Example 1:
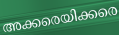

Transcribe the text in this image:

അക്കരെയിക്കരെ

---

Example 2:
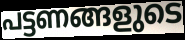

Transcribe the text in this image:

പട്ടണങ്ങളുടെ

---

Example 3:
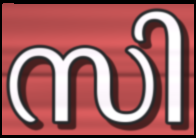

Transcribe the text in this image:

സി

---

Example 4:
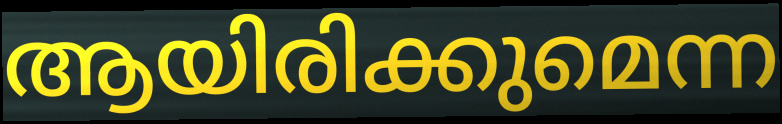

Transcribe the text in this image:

ആയിരിക്കുമെന്ന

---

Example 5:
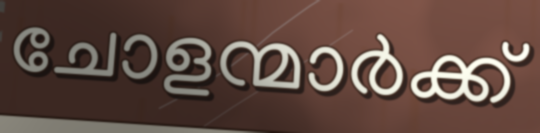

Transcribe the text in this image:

ചോളന്മാർക്ക്